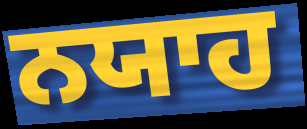
ਨਯਾਹ